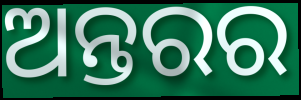
ଅନ୍ତରର